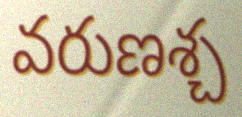
వరుణశ్చ